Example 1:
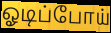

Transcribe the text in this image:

ஓடிப்போய்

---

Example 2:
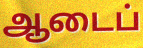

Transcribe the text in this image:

ஆடைப்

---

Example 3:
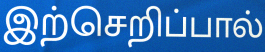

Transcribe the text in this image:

இற்செறிப்பால்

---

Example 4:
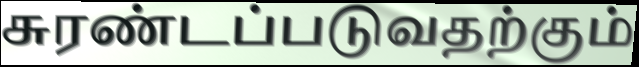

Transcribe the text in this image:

சுரண்டப்படுவதற்கும்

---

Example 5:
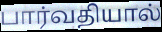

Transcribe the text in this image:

பார்வதியால்